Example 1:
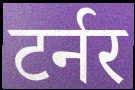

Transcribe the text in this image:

टर्नर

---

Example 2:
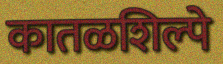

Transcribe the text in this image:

कातळशिल्पे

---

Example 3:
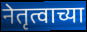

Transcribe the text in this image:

नेतृत्वाच्या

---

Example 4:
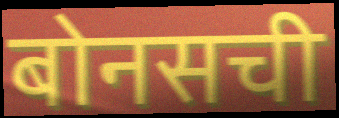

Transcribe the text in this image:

बोनसची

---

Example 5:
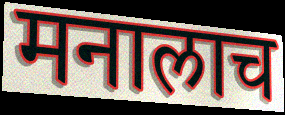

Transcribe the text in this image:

मनालाच